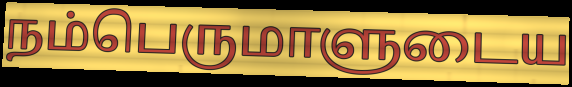
நம்பெருமாளுடைய